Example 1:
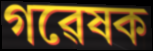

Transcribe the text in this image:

গৱেষক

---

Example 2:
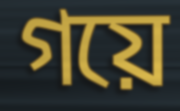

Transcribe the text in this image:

গয়ে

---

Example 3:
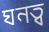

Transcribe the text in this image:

ঘনত্ব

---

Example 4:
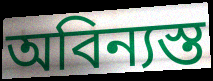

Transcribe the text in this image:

অবিন্যস্ত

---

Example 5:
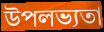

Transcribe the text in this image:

উপলভ্যতা